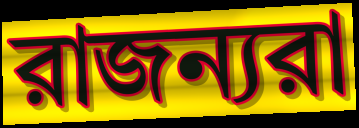
রাজন্যরা